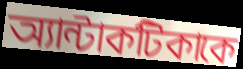
অ্যান্টার্কটিকাকে